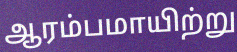
ஆரம்பமாயிற்று